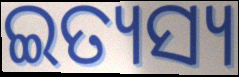
ଇତ୍ୟସ୍ୟ